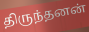
திருந்தனன்